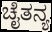
ಚೈತನ್ಯ